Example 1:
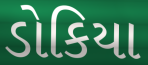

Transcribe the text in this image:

ડોકિયા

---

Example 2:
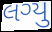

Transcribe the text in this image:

લગ્યુ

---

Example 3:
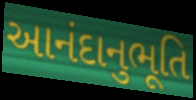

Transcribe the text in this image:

આનંદાનુભૂતિ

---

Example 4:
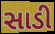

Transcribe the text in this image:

સાડી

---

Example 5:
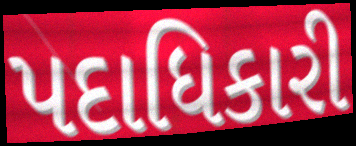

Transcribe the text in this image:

પદાધિકારી